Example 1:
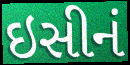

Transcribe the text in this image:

ઇસીનં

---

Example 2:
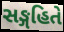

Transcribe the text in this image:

સઙ્ગહિતે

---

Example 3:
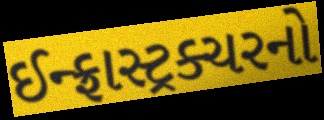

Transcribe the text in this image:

ઈન્ફ્રાસ્ટ્રક્ચરનો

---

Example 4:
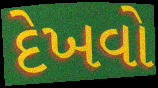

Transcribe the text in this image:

દેખવો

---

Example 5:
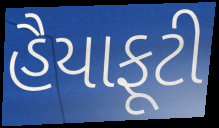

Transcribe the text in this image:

હૈયાફૂટી